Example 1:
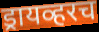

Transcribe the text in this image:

ड्रायव्हरच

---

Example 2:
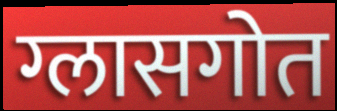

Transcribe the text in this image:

ग्लासगोत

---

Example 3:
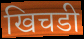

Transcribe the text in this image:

खिचडी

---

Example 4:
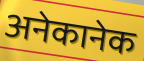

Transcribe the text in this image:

अनेकानेक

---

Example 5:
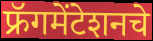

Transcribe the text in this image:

फ्रॅगमेंटेशनचे